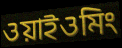
ওয়াইওমিং